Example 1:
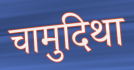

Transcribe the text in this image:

चामुदिथा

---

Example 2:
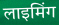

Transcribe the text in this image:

लाइमिंग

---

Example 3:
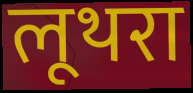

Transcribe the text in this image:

लूथरा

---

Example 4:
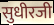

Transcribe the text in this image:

सुधीरजी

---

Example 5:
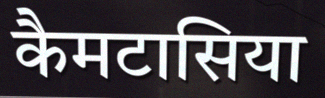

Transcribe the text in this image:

कैमटासिया